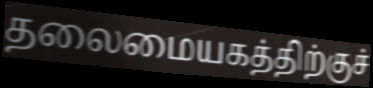
தலைமையகத்திற்குச்